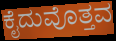
ಕೈದುವೊತ್ತವ